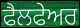
ਫੈਲਫੇਅਰ